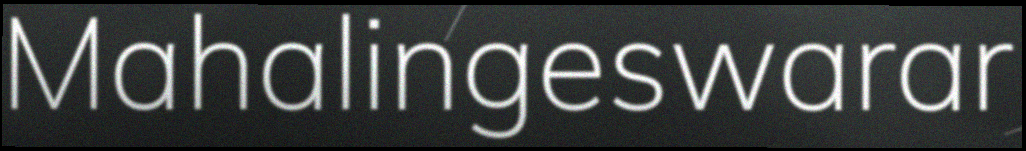
Mahalingeswarar